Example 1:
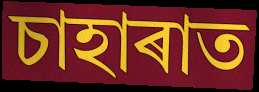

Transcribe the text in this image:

চাহাৰাত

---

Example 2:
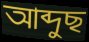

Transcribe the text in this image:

আব্দুছ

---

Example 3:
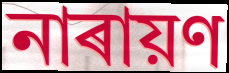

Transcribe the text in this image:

নাৰায়ণ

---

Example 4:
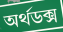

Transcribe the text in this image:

অৰ্থডক্স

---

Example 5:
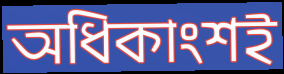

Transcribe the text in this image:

অধিকাংশই